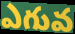
ఎగువ